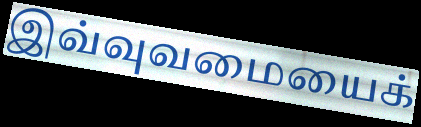
இவ்வுவமையைக்